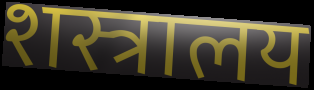
शस्त्रालय